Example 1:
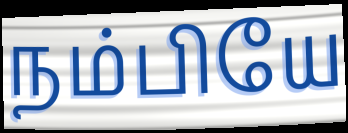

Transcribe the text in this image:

நம்பியே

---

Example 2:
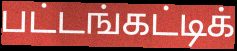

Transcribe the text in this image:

பட்டங்கட்டிக்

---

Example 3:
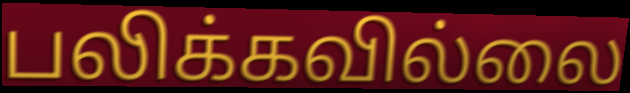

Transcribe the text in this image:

பலிக்கவில்லை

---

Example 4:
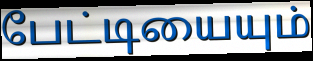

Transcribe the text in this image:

பேட்டியையும்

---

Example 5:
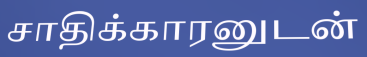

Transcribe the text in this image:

சாதிக்காரனுடன்